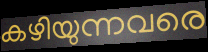
കഴിയുന്നവരെ